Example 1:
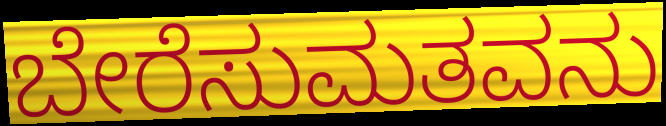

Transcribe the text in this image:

ಬೇರೆಸುಮತವನು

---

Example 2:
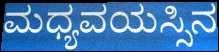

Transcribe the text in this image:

ಮಧ್ಯವಯಸ್ಸಿನ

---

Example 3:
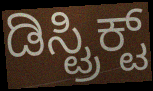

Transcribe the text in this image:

ಡಿಸ್ಟ್ರಿಕ್ಟ್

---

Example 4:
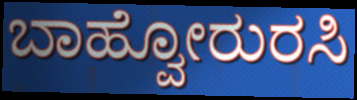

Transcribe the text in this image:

ಬಾಹ್ವೋರುರಸಿ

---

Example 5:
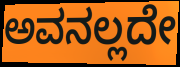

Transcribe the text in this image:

ಅವನಲ್ಲದೇ